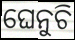
ଘେନୁଚି